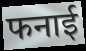
फनाई